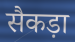
सैकड़ा